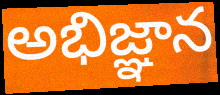
అభిజ్ఞాన